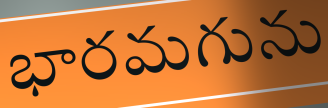
భారమగును